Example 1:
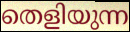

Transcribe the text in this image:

തെളിയുന്ന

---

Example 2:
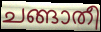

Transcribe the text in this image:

ചങ്ങാതീ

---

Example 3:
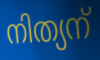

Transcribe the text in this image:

നിത്യന്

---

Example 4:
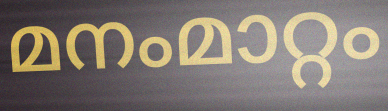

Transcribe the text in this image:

മനംമാറ്റം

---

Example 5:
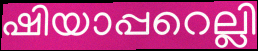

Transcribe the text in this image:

ഷിയാപ്പറെല്ലി